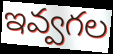
ఇవ్వగల